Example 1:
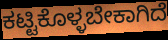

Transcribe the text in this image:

ಕಟ್ಟಿಕೊಳ್ಳಬೇಕಾಗಿದೆ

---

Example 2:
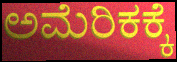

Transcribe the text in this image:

ಅಮೆರಿಕಕ್ಕೆ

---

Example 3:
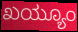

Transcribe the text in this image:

ಖಯ್ಯೂಂ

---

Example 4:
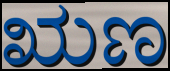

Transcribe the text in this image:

ಋಣ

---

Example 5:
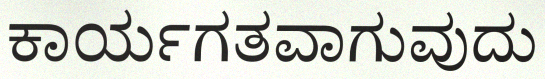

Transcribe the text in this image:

ಕಾರ್ಯಗತವಾಗುವುದು